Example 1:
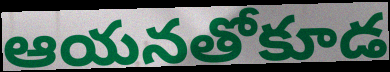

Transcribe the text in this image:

ఆయనతోకూడ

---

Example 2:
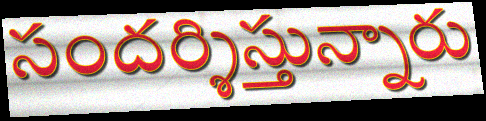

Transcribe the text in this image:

సందర్శిస్తున్నారు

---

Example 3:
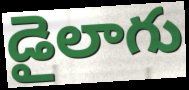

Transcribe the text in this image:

డైలాగు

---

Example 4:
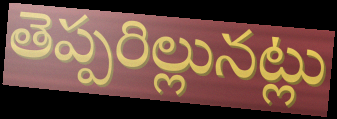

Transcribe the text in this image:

తెప్పరిల్లునట్లు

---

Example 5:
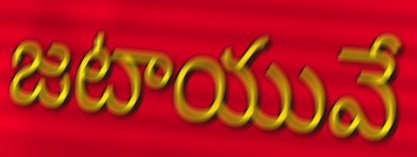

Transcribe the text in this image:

జటాయువే